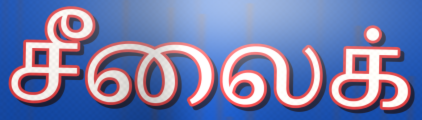
சீலைக்